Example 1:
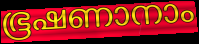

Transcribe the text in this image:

ഭൂഷണാനാം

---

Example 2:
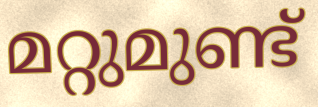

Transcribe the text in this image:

മറ്റുമുണ്ട്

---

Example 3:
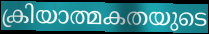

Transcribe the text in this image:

ക്രിയാത്മകതയുടെ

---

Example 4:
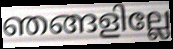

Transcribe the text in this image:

ഞങ്ങളില്ലേ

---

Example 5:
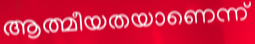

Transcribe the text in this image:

ആത്മീയതയാണെന്ന്